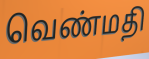
வெண்மதி